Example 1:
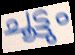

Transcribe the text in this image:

ചൂട്ടും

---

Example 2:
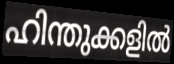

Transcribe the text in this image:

ഹിന്തുക്കളിൽ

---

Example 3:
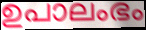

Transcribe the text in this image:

ഉപാലംഭം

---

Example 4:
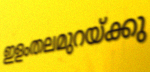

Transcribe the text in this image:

ഇളംതലമുറയ്ക്കു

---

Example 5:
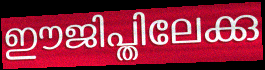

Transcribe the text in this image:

ഈജിപ്തിലേക്കു